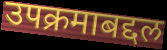
उपक्रमाबद्दल